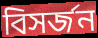
বিসৰ্জন